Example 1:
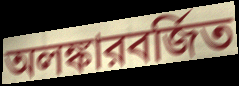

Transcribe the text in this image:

অলঙ্কারবর্জিত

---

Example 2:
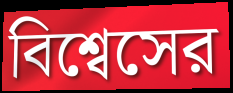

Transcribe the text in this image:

বিশ্বেসের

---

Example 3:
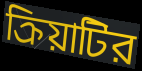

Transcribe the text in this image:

ক্রিয়াটির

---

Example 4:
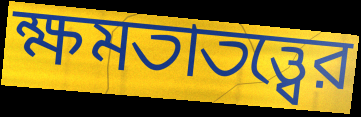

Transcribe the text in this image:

ক্ষমতাতত্ত্বের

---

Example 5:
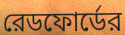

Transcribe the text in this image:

রেডফোর্ডের